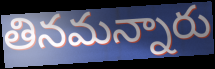
తినమన్నారు